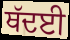
ਥੱਦਈ